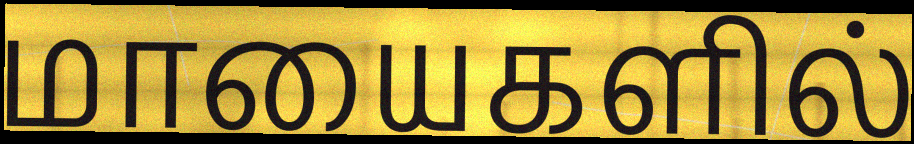
மாயைகளில்